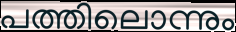
പത്തിലൊന്നും